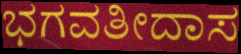
ಭಗವತೀದಾಸ